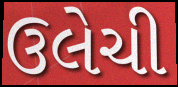
ઉલેચી